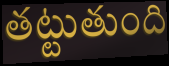
తట్టుతుంది